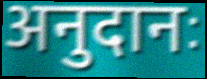
अनुदानः